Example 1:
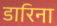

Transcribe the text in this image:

डारिना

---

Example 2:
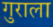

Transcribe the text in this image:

गुराला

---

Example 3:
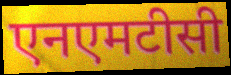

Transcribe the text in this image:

एनएमटीसी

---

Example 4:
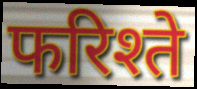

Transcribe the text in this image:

फरिश्ते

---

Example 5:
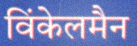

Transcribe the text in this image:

विंकेलमैन